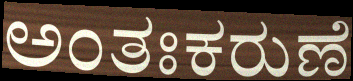
ಅಂತಃಕರುಣೆ